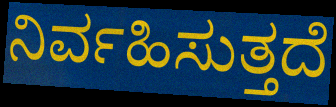
ನಿರ್ವಹಿಸುತ್ತದೆ